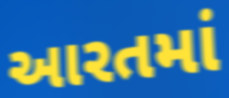
આરતમાં